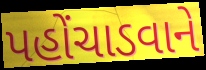
પહોંચાડવાને